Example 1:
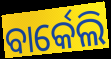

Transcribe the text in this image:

ବାର୍କେଲି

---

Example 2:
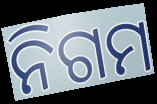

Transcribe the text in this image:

ନିଗମ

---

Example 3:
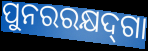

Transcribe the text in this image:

ପୁନରରକ୍ଷଦ୍‌ଗା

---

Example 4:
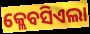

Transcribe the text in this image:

କ୍ଲେବସିଏଲା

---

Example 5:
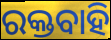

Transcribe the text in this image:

ରକ୍ତବାହି